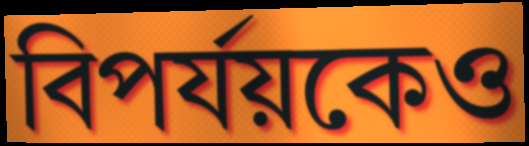
বিপর্যয়কেও